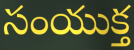
సంయుక్త